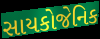
સાયકોજેનિક